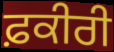
ਫ਼ਕੀਰੀ